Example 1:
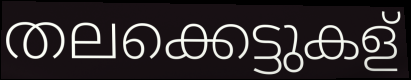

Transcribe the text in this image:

തലക്കെട്ടുകള്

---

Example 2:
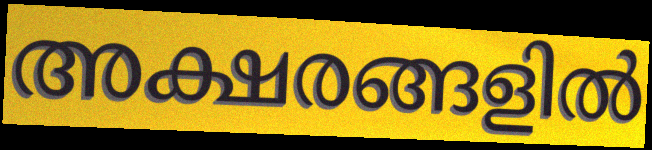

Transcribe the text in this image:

അക്ഷരങ്ങളിൽ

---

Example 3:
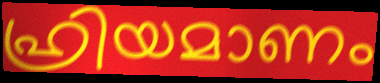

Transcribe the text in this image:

ഹ്രിയമാണം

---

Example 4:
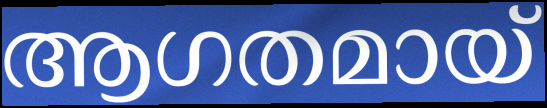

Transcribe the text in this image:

ആഗതമായ്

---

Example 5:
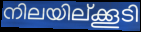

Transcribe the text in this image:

നിലയില്ക്കൂടി